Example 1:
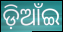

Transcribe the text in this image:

ଡ଼ିଆଁଇ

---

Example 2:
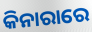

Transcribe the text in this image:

କିନାରାରେ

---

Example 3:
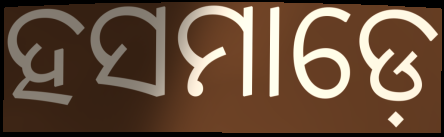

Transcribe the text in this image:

ହସମାଡ଼େ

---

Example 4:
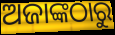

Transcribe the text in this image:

ଅଜାଙ୍କଠାରୁ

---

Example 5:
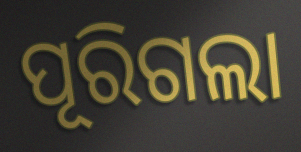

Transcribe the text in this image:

ପୂରିଗଲା